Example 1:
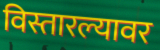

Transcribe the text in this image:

विस्तारल्यावर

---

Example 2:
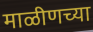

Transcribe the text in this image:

माळीणच्या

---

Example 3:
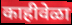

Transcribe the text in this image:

काहीवेळा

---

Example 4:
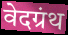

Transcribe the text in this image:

वेदग्रंथ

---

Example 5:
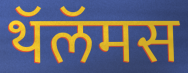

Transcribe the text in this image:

थॅलॅमस